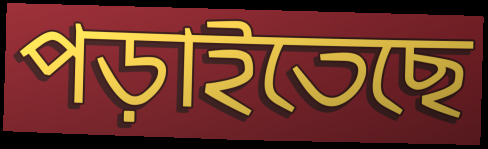
পড়াইতেছে